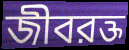
জীবরক্ত